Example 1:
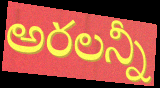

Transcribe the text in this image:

అరలన్నీ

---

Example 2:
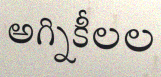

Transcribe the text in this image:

అగ్నికీలల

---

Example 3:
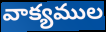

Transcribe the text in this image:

వాక్యముల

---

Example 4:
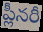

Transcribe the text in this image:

ప్లీనరీ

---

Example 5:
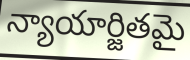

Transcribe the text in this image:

న్యాయార్జితమై